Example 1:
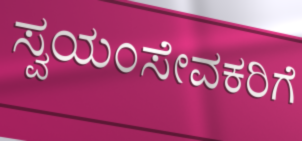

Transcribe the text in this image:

ಸ್ವಯಂಸೇವಕರಿಗೆ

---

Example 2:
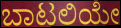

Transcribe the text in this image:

ಬಾಟಲಿಯೇ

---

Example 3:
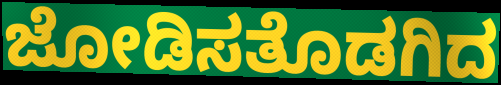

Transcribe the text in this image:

ಜೋಡಿಸತೊಡಗಿದ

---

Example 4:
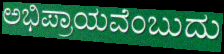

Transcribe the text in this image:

ಅಭಿಪ್ರಾಯವೆಂಬುದು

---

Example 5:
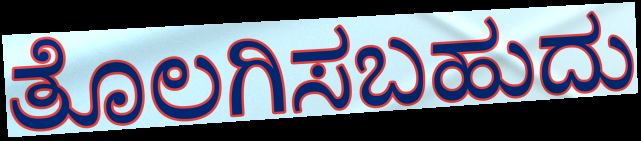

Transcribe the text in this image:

ತೊಲಗಿಸಬಹುದು